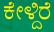
ಕೇಳ್ದಿರೆ